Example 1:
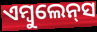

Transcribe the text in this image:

ଏମ୍ବୁଲେନ୍‌ସ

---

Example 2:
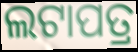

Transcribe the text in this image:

ଲଟାପତ୍ର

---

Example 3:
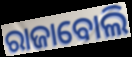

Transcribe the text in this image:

ରାଜାବୋଲି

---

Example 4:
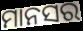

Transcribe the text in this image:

ମାନସର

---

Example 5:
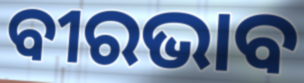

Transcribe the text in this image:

ବୀରଭାବ